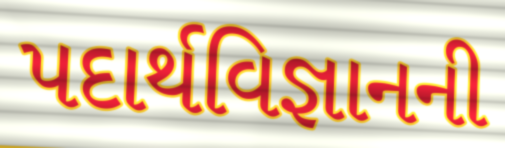
પદાર્થવિજ્ઞાનની